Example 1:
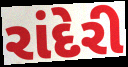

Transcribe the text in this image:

રાંદેરી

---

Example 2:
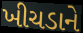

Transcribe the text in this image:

ખીચડાને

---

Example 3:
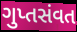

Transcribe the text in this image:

ગુપ્તસંવત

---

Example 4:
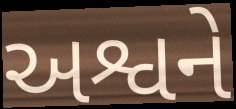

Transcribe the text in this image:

અશ્વને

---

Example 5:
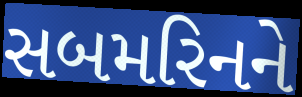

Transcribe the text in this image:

સબમરિનને